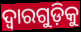
ଦ୍ୱାରଗୁଡ଼ିକୁ